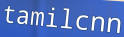
tamilcnn